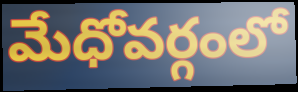
మేధోవర్గంలో